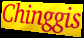
Chinggis